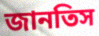
জানতিস